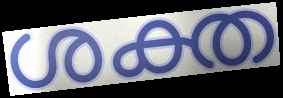
ശക്ത